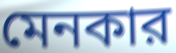
মেনকার